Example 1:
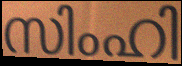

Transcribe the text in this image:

സിംഹി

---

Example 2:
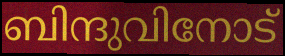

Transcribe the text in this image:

ബിന്ദുവിനോട്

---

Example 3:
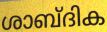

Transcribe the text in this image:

ശാബ്ദിക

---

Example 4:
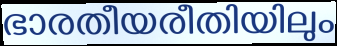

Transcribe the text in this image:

ഭാരതീയരീതിയിലും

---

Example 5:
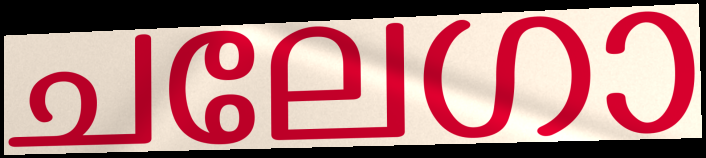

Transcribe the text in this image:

ചലേഗാ